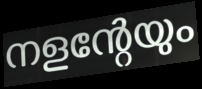
നളന്റേയും